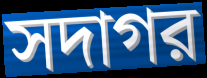
সদাগর